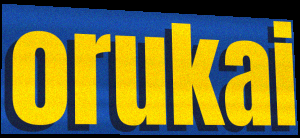
orukai